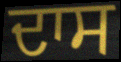
ਦਾਸ